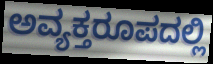
ಅವ್ಯಕ್ತರೂಪದಲ್ಲಿ